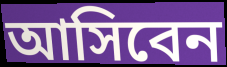
আসিবেন